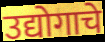
उद्योगाचे